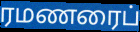
ரமணரைப்